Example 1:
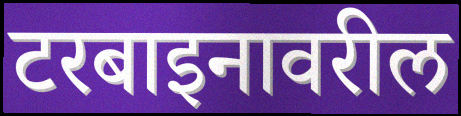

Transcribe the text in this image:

टरबाइनावरील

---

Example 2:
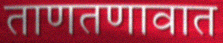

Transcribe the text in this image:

ताणतणावात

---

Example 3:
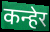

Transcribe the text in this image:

कन्हेर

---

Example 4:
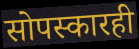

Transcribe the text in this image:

सोपस्कारही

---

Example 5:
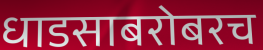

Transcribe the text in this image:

धाडसाबरोबरच